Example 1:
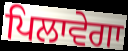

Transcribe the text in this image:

ਪਿਲਾਵੇਗਾ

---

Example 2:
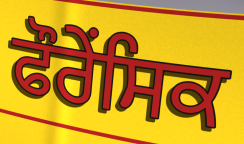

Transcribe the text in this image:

ਫੌਰੇਂਸਿਕ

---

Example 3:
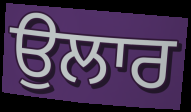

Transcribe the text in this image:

ਉਲਾਰ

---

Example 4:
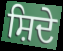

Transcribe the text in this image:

ਸ਼ਿਦੇ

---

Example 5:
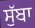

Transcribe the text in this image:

ਸੁੱਬਾ